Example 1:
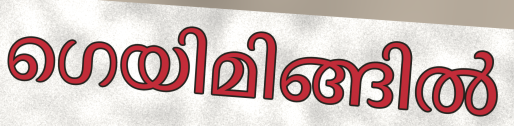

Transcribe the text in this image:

ഗെയിമിങ്ങിൽ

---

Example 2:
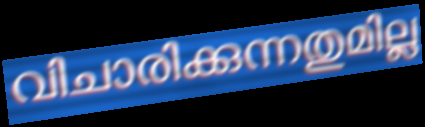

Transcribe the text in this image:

വിചാരിക്കുന്നതുമില്ല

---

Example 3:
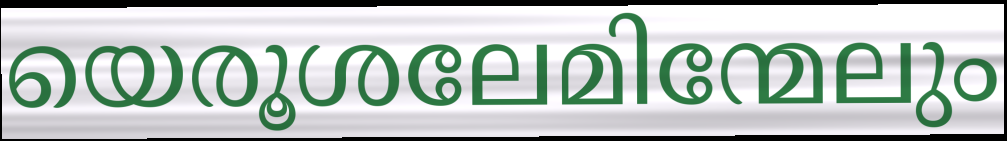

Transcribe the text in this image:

യെരൂശലേമിന്മേലും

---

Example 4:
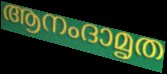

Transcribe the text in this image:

ആനംദാമൃത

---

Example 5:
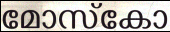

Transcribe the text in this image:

മോസ്‌കോ